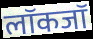
लॉकजॉ